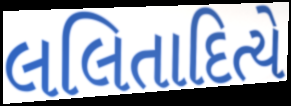
લલિતાદિત્યે